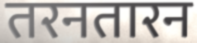
तरनतारन